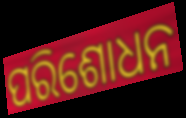
ପରିଶୋଧନ